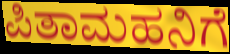
ಪಿತಾಮಹನಿಗೆ